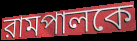
রামপালকে